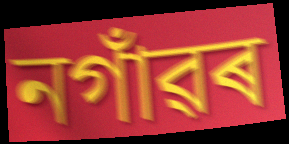
নগাঁৱৰ